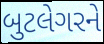
બુટલેગરને